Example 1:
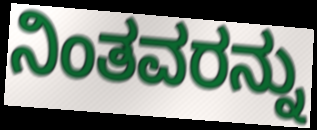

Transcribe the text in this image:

ನಿಂತವರನ್ನು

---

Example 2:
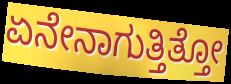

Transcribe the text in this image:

ಏನೇನಾಗುತ್ತಿತ್ತೋ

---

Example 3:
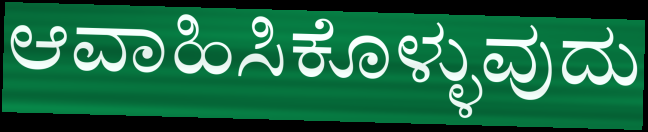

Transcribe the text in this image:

ಆವಾಹಿಸಿಕೊಳ್ಳುವುದು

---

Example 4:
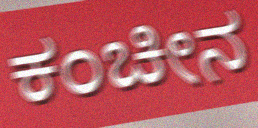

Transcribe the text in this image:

ಕಂಚೀನ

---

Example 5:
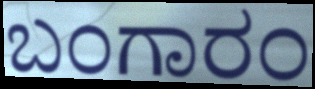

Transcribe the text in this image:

ಬಂಗಾರಂ